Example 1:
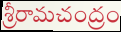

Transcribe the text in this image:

శ్రీరామచంద్రం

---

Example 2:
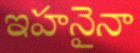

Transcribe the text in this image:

ఇహనైనా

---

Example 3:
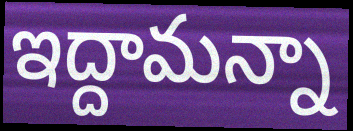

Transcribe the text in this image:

ఇద్దామన్నా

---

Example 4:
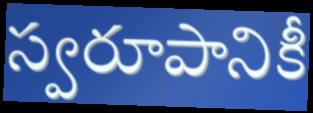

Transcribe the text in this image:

స్వరూపానికీ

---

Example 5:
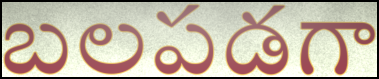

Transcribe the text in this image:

బలపడగా